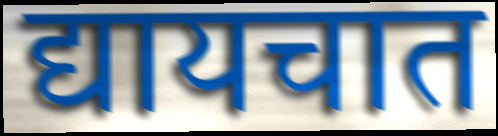
द्यायचात